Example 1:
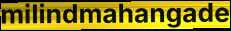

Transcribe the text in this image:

milindmahangade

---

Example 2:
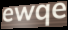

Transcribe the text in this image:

ewqe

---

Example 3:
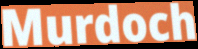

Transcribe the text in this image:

Murdoch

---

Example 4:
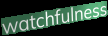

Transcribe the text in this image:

watchfulness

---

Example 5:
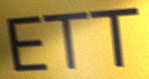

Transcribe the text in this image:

ETT